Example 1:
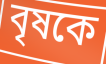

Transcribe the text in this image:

বৃষকে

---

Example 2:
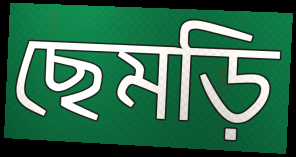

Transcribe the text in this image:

ছেমড়ি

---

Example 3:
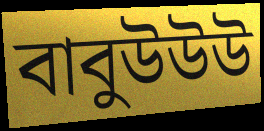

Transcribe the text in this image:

বাবুউউউ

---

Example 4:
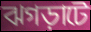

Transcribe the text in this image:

ঝগড়াটে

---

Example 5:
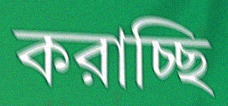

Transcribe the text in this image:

করাচ্ছি